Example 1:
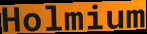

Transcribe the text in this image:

Holmium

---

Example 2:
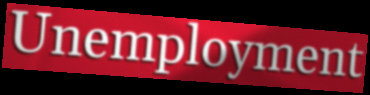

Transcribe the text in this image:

Unemployment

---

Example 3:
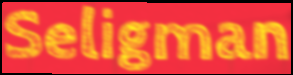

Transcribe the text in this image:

Seligman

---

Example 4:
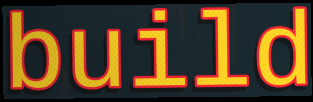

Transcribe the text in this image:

build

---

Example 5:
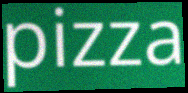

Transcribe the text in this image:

pizza